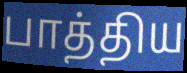
பாத்திய